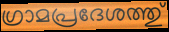
ഗ്രാമപ്രദേശത്തു്